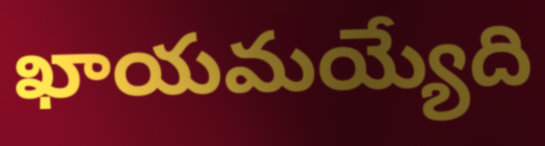
ఖాయమయ్యేది